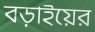
বড়াইয়ের